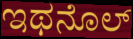
ಇಥನೊಲ್